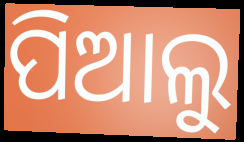
ପିଆଲୁ